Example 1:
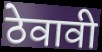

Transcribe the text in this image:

ठेवावी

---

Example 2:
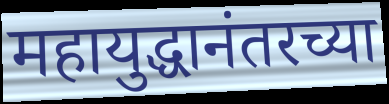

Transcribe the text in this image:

महायुद्धानंतरच्या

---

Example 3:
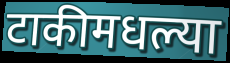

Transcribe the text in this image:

टाकीमधल्या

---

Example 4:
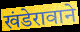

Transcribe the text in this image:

खंडेरावाने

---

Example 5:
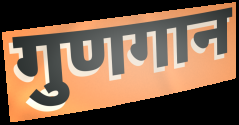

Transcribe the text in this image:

गुणगान